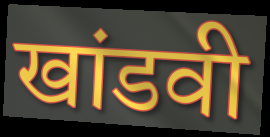
खांडवी